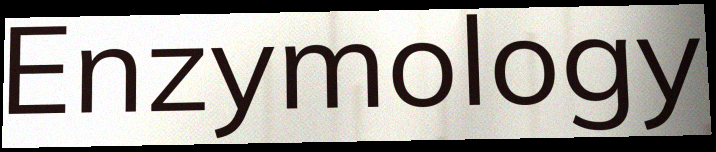
Enzymology